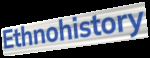
Ethnohistory